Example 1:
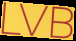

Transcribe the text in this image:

LVB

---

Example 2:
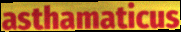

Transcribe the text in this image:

asthamaticus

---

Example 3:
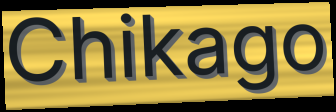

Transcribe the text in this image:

Chikago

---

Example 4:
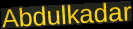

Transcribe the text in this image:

Abdulkadar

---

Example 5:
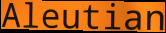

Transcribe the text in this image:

Aleutian